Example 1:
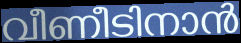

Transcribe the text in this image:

വീണീടിനാൻ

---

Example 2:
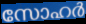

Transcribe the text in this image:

സോഹർ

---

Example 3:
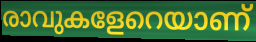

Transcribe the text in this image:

രാവുകളേറെയാണ്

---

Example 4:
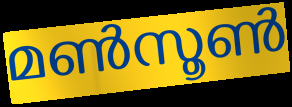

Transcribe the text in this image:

മൺസൂൺ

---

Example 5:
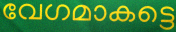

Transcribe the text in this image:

വേഗമാകട്ടെ